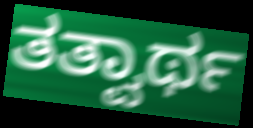
ತತ್ವಾರ್ಥ